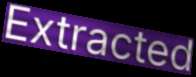
Extracted